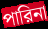
পারিনা